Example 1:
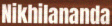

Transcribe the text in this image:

Nikhilananda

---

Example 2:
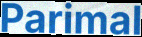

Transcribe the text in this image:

Parimal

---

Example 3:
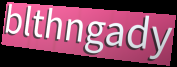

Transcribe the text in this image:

blthngady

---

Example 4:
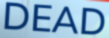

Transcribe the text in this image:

DEAD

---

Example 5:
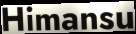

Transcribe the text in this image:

Himansu